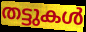
തട്ടുകൾ